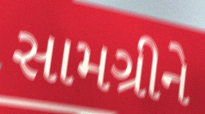
સામગ્રીને